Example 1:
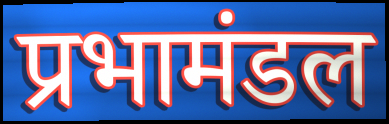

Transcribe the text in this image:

प्रभामंडल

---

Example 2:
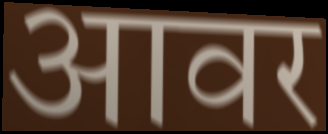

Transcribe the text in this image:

आवर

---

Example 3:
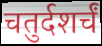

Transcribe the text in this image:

चतुर्दशर्चं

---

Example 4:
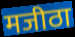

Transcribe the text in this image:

मजीठा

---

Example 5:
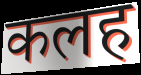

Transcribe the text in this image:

कलह